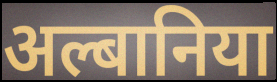
अल्बानिया